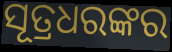
ସୂତ୍ରଧରଙ୍କର